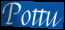
Pottu